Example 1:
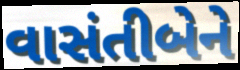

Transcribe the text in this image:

વાસંતીબેને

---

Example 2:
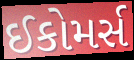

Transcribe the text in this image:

ઈકોમર્સ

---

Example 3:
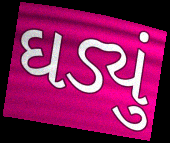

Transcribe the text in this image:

ઘડ્યું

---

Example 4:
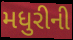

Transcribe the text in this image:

મધુરીની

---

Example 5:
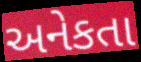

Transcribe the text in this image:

અનેકતા